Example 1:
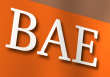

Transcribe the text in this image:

BAE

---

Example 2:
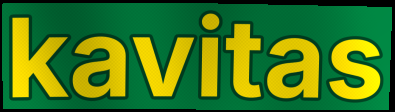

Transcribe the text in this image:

kavitas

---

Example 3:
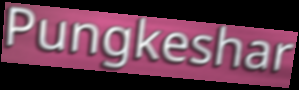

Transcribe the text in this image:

Pungkeshar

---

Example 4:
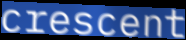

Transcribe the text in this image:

crescent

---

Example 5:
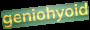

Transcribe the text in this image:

geniohyoid